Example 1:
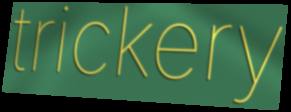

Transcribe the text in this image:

trickery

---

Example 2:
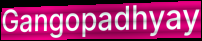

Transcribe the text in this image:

Gangopadhyay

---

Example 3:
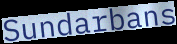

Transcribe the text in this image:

Sundarbans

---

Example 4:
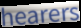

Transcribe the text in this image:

hearers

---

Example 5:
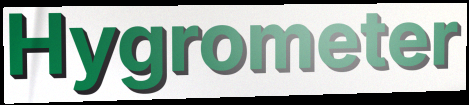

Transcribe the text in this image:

Hygrometer